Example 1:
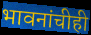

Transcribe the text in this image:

भावनांचीही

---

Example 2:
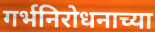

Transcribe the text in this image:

गर्भनिरोधनाच्या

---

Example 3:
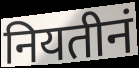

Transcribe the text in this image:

नियतीनं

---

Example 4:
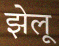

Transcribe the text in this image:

झेलू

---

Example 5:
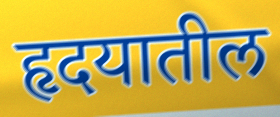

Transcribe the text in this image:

हृदयातील